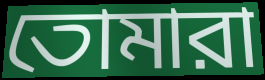
তোমারা